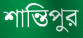
শান্তিপুর